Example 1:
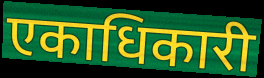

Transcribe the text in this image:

एकाधिकारी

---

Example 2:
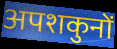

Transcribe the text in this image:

अपशकुनों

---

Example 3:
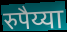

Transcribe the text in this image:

रुपैय्या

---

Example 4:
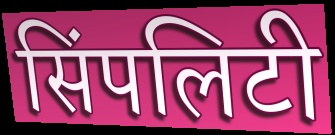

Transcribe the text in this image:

सिंपलिटी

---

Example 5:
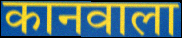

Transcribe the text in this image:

कानवाला